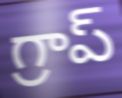
గ్రాప్